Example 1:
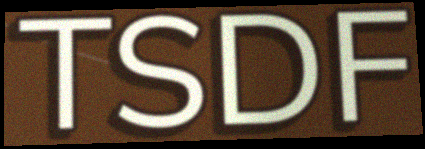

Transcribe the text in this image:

TSDF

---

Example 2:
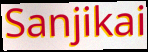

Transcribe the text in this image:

Sanjikai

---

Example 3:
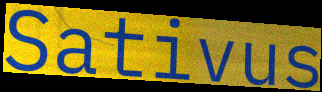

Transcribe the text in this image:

Sativus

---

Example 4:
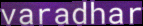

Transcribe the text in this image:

varadhar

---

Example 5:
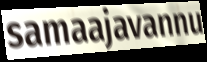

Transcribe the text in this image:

samaajavannu